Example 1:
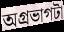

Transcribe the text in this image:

অগ্রভাগটা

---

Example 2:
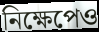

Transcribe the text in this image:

নিক্ষেপেও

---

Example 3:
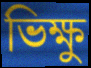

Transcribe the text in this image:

ভিক্ষু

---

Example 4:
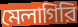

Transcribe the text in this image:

মেলাগিরি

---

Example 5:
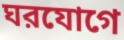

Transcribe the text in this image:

ঘরযোগে